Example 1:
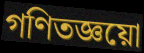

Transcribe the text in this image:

গণিতজ্ঞয়ো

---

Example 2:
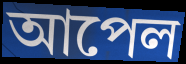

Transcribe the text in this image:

আপেল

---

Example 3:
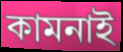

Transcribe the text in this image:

কামনাই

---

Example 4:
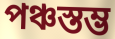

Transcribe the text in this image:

পঞ্চস্তম্ভ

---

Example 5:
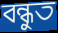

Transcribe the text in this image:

বন্ধুত